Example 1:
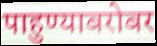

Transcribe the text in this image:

पाहुण्याबरोबर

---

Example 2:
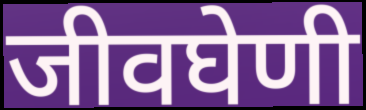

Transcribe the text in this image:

जीवघेणी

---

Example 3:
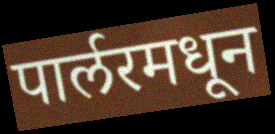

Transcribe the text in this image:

पार्लरमधून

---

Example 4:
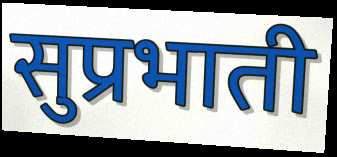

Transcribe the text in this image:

सुप्रभाती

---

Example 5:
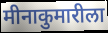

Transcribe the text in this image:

मीनाकुमारीला